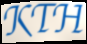
KTH